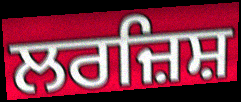
ਲਰਜ਼ਿਸ਼